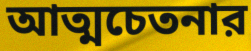
আত্মচেতনার